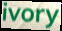
ivory